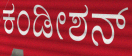
ಕಂಡೀಶನ್